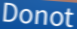
Donot